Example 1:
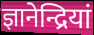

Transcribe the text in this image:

ज्ञानेन्द्रियां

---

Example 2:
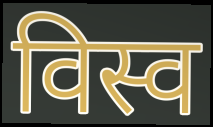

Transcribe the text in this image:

विस्व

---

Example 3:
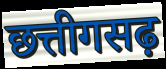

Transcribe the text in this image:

छत्तीगसढ़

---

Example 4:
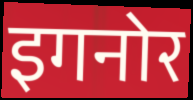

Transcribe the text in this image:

इगनोर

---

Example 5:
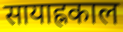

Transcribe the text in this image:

सायाह्नकाल